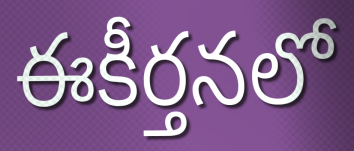
ఈకీర్తనలో